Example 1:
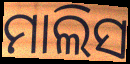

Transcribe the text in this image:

ମାଲିସ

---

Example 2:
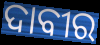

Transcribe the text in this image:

ଦାବୀର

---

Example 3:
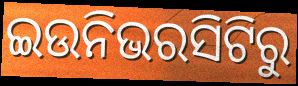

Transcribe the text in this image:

ଇଉନିଭରସିଟିରୁ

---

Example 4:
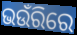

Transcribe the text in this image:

ଭଉଁରିରେ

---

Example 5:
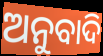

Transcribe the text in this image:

ଅନୁବାଦି